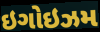
ઇગોઇઝમ